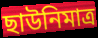
ছাউনিমাত্র